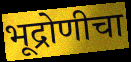
भूद्रोणीचा